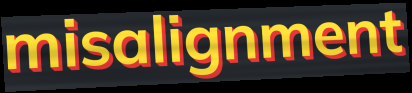
misalignment